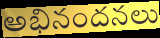
అభినందనలు